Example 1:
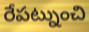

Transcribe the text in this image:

రేపట్నుంచి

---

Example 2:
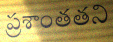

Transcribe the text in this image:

ప్రశాంతతని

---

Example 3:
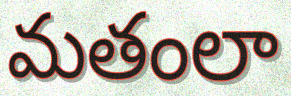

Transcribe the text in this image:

మతంలా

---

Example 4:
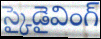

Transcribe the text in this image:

స్కైడైవింగ్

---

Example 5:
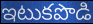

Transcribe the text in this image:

ఇటుకపొడి